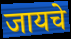
जायचे